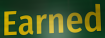
Earned